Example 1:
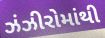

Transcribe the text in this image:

ઝંઝીરોમાંથી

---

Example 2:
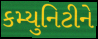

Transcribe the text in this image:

કમ્યુનિટીને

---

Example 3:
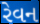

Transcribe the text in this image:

રેવન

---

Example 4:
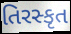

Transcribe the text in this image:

તિરસ્કૃત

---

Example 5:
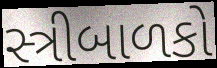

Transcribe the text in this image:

સ્ત્રીબાળકો